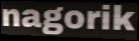
nagorik